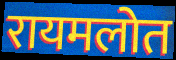
रायमलोत